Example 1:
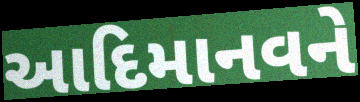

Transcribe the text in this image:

આદિમાનવને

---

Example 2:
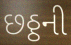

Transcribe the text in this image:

છઠ્ઠની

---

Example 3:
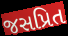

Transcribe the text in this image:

જસપ્રિત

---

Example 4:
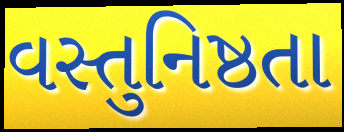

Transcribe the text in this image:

વસ્તુનિષ્ઠતા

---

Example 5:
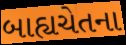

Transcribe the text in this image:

બાહ્યચેતના